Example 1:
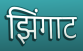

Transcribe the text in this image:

झिंगाट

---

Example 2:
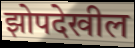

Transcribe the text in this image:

झोपदेखील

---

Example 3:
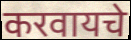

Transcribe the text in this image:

करवायचे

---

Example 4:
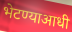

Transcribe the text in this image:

भेटण्याआधी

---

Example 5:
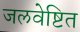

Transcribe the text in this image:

जलवेष्टित